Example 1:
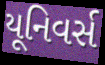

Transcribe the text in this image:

યૂનિવર્સ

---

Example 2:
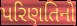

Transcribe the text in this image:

પરિણતિનો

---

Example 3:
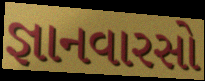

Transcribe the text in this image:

જ્ઞાનવારસો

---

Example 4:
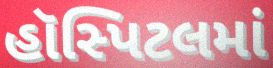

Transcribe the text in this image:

હૉસ્પિટલમાં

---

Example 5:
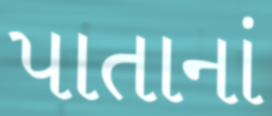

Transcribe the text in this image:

પાતાનાં